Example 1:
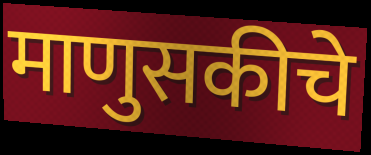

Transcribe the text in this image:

माणुसकीचे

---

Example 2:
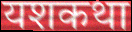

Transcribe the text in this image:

यशकथा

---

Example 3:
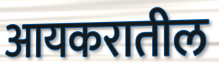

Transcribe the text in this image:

आयकरातील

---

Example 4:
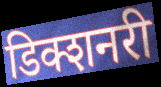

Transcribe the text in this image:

डिक्शनरी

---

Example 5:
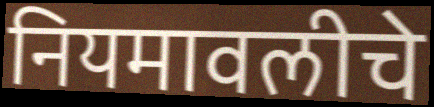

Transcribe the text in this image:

नियमावलीचे